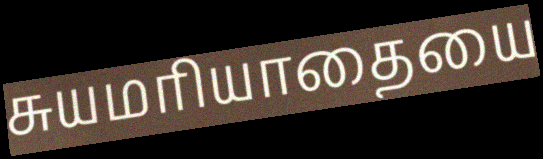
சுயமரியாதையை